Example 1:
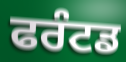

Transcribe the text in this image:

ਫਰੰਟਡ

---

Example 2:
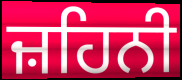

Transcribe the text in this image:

ਜ਼ਹਿਨੀ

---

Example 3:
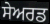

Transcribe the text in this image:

ਸੇਅਰਡ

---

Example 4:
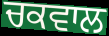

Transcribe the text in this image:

ਚਕਵਾਲ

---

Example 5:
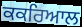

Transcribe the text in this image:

ਕਕਰਿਆਲ